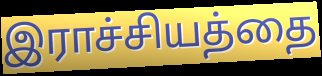
இராச்சியத்தை